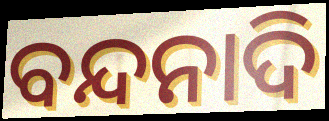
ବନ୍ଦନାଦି